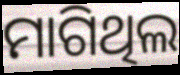
ମାଗିଥିଲ